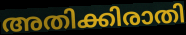
അതിക്കിരാതി